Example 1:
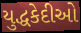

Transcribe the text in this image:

યુદ્ધકેદીઓ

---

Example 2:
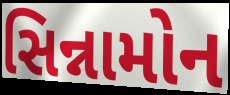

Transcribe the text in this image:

સિન્નામોન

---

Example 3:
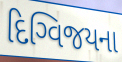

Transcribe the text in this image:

દિગ્વિજયના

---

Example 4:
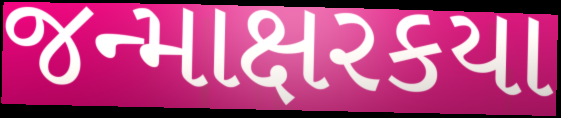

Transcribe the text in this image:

જન્માક્ષરકયા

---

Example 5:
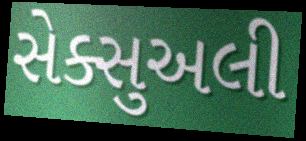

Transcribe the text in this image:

સેક્સુઅલી